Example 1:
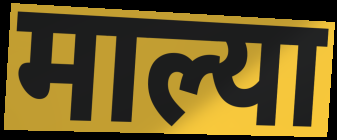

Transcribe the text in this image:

माल्या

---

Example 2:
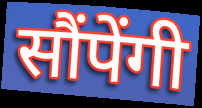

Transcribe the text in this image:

सौंपेंगी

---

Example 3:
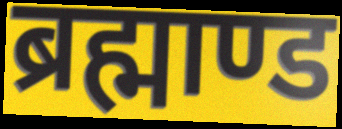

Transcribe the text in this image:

ब्रह्माण्ड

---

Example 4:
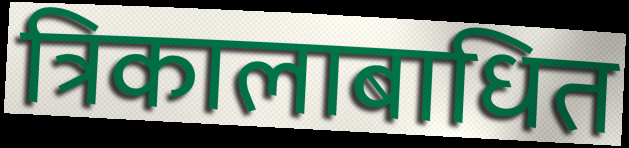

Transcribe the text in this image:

त्रिकालाबाधित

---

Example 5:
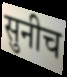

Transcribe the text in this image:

सुनीच